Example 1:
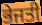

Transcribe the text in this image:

ਭੇਜਤੀ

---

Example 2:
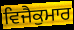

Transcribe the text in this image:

ਵਿਜੈਕੁਮਾਰ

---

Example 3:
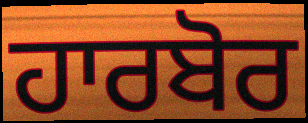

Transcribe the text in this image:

ਹਾਰਬੋਰ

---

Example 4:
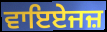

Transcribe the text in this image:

ਵਾਇਏਜਜ਼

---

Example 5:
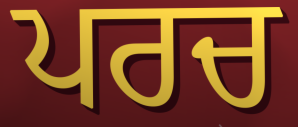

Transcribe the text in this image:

ਪਰਚ